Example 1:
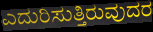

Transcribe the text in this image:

ಎದುರಿಸುತ್ತಿರುವುದರ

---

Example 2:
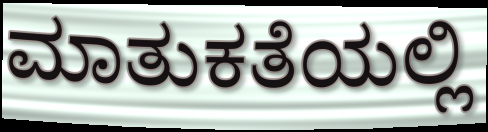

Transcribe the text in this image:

ಮಾತುಕತೆಯಲ್ಲಿ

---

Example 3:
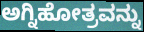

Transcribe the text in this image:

ಅಗ್ನಿಹೋತ್ರವನ್ನು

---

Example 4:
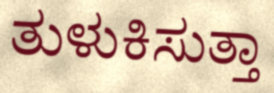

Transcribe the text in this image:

ತುಳುಕಿಸುತ್ತಾ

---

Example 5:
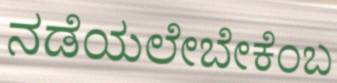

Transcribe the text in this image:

ನಡೆಯಲೇಬೇಕೆಂಬ